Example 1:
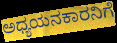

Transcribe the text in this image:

ಅಧ್ಯಯನಕಾರನಿಗೆ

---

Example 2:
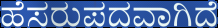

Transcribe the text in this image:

ಹೆಸರುಪದವಾಗಿದೆ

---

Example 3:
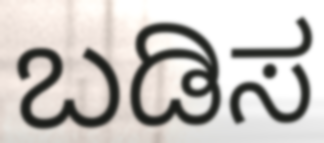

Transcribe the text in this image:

ಬಡಿಸ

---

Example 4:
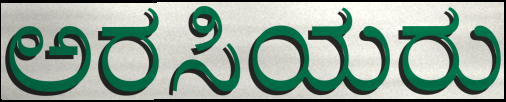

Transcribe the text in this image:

ಅರಸಿಯರು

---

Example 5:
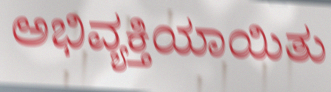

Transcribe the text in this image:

ಅಭಿವ್ಯಕ್ತಿಯಾಯಿತು